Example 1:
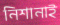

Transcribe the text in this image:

নিশানাই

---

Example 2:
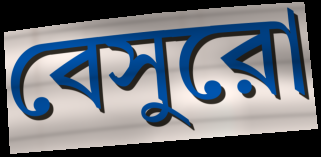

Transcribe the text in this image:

বেসুরো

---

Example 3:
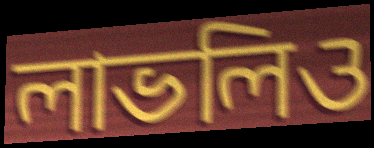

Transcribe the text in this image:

লাভলিও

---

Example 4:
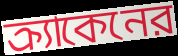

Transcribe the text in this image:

ক্র্যাকেনের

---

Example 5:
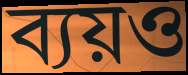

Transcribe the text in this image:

ব্যয়ও